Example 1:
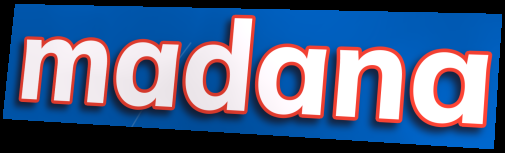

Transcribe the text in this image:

madana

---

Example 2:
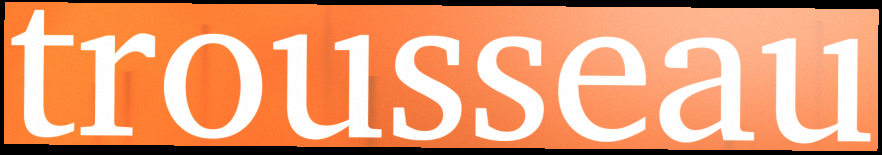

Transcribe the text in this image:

trousseau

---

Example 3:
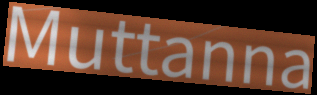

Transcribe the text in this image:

Muttanna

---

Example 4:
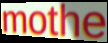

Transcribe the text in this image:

mothe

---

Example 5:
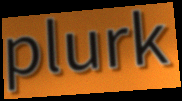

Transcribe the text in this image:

plurk